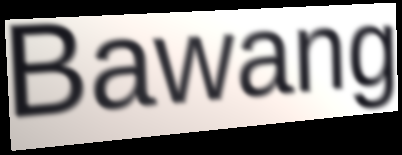
Bawang